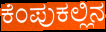
ಕೆಂಪುಕಲ್ಲಿನ